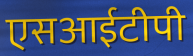
एसआईटीपी